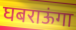
घबराऊंगा